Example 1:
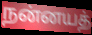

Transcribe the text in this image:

நன்னயத்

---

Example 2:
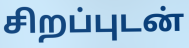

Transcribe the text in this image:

சிறப்புடன்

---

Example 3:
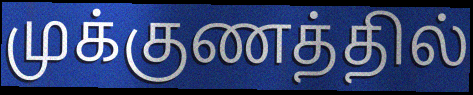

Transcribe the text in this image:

முக்குணத்தில்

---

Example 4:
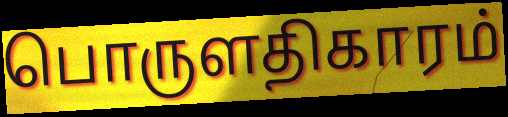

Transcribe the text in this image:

பொருளதிகாரம்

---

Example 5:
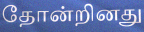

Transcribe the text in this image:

தோன்றினது